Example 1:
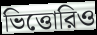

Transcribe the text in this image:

ভিত্তোরিও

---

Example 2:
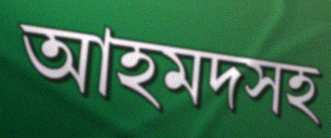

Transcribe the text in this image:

আহমদসহ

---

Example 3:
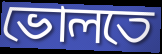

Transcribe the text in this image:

ভোলতে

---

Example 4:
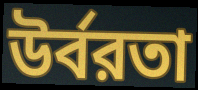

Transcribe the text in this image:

উর্বরতা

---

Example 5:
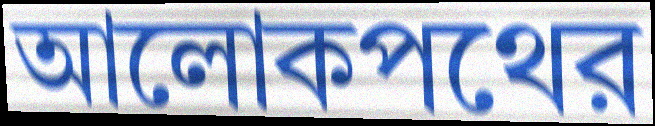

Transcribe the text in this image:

আলোকপথের